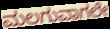
ಮಲಗುವಾಗಲೇ